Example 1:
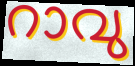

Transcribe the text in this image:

റാവു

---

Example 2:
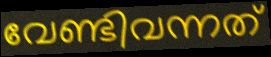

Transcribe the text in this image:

വേണ്ടിവന്നത്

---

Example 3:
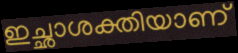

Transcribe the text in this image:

ഇച്ഛാശക്തിയാണ്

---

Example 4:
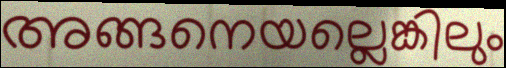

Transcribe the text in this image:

അങ്ങനെയല്ലെങ്കിലും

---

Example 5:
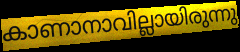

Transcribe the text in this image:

കാണാനാവില്ലായിരുന്നു